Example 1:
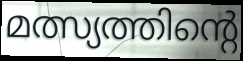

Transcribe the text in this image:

മത്സ്യത്തിന്റെ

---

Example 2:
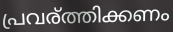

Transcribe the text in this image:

പ്രവര്ത്തിക്കണം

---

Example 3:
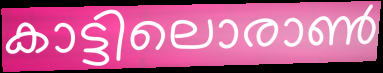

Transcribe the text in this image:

കാട്ടിലൊരാൺ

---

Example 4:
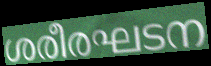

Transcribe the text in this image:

ശരീരഘടന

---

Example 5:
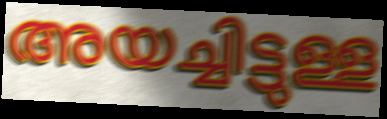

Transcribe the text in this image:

അയച്ചിട്ടുള്ള